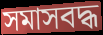
সমাসবদ্ধ